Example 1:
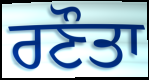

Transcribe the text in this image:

ਰਣੌਤਾ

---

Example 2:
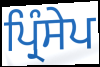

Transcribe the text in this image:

ਪ੍ਰਿੰਸੇਪ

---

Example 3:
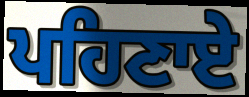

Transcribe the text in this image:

ਪਹਿਣਾਏ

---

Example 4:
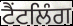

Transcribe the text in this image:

ਟੈਂਟਲਿੰਗ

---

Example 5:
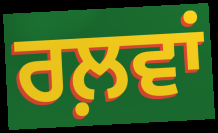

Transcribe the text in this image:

ਰਲ਼ਵਾਂ